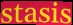
stasis